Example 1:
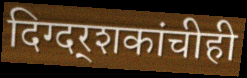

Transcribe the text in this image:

दिग्दर्शकांचीही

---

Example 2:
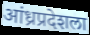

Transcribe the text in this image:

आंध्रप्रदेशला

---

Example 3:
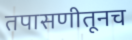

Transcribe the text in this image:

तपासणीतूनच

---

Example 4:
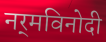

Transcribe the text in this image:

नर्मविनोदी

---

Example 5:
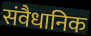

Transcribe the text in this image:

संवैधानिक